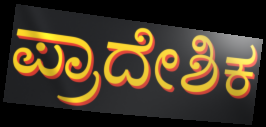
ಪ್ರಾದೇಶಿಕ